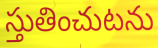
స్తుతించుటను